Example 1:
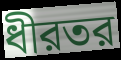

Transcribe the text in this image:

ধীরতর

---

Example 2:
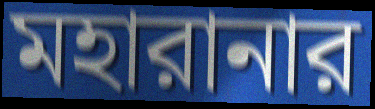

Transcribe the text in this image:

মহারানার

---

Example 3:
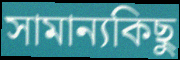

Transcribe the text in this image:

সামান্যকিছু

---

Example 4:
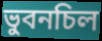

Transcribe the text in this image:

ভুবনচিল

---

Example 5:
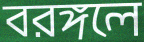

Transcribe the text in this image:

বরঙ্গলে